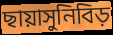
ছায়াসুনিবিড়